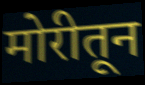
मोरीतून